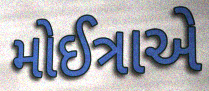
મોઈત્રાએ